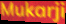
Mukarji